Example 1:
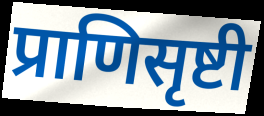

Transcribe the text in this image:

प्राणिसृष्टी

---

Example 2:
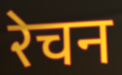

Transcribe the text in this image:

रेचन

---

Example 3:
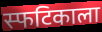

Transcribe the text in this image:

स्फटिकाला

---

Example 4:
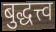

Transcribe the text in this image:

बुद्धत्त्व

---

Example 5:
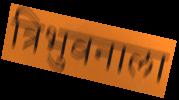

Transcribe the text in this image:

त्रिभुवनाला